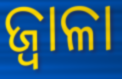
ଜ୍ୱାଳା